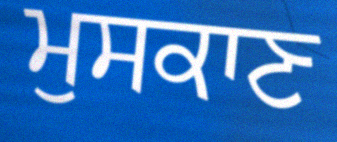
ਮੁਸਕਾਣ